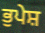
ਭੁਪੇਸ਼